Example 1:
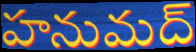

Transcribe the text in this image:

హనుమద్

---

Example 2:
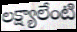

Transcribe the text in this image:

లక్ష్యాలేంటి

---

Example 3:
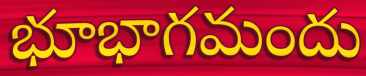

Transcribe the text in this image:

భూభాగమందు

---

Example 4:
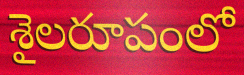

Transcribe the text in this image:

శైలరూపంలో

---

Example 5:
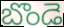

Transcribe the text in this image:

బొండె